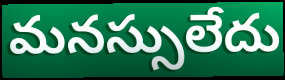
మనస్సులేదు